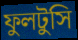
ফুলটুসি